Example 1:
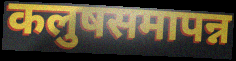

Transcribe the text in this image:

कलुषसमापन्न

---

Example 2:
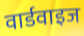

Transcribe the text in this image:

वार्डवाइज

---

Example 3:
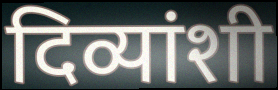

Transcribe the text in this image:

दिव्यांशी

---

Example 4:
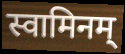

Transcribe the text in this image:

स्वामिनम्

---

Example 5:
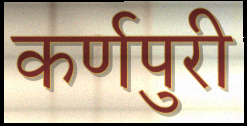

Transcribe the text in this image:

कर्णपुरी